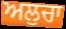
ਅਲੁਚਾ